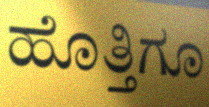
ಹೊತ್ತಿಗೂ